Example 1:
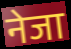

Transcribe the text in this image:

नेजा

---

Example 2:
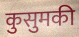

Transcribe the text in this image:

कुसुमकी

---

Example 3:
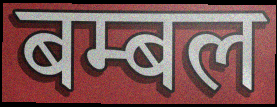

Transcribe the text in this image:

बम्बल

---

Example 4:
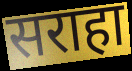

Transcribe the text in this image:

सराहा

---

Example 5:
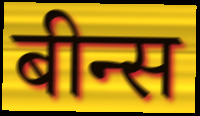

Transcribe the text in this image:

बीन्स